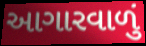
આગારવાળું